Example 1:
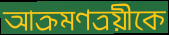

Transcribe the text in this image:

আক্রমণত্রয়ীকে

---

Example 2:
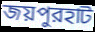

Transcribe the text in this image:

জয়পুরহাট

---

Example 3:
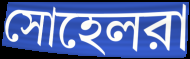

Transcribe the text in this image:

সোহেলরা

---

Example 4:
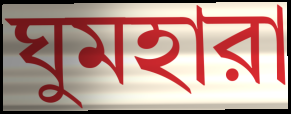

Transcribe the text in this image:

ঘুমহারা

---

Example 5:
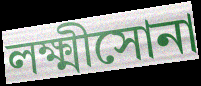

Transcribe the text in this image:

লক্ষ্মীসোনা